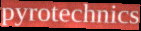
pyrotechnics